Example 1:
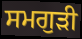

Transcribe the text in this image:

ਸਮਗੁੜੀ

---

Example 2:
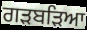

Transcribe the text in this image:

ਗੜਬੜਿਆ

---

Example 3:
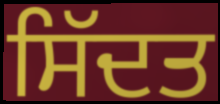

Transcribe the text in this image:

ਸਿੱਦਤ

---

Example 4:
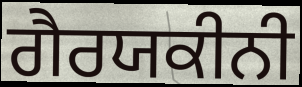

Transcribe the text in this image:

ਗੈਰਯਕੀਨੀ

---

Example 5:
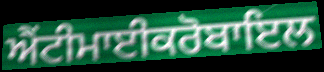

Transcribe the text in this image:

ਐਂਟੀਮਾਈਕਰੋਬਾਇਲ